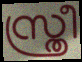
സ്ത്രീ